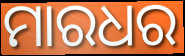
ମାରଧର